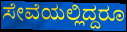
ಸೇವೆಯಲ್ಲಿದ್ದರೂ